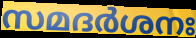
സമദർശനഃ